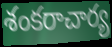
శంకరాచార్య